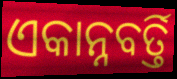
ଏକାନ୍ନବର୍ତ୍ତି